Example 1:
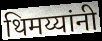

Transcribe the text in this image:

थिमय्यांनी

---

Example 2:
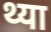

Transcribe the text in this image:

थ्या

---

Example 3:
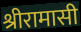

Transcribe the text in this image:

श्रीरामासी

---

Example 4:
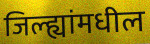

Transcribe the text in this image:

जिल्ह्यांमधील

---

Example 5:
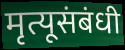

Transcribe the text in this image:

मृत्यूसंबंधी